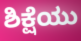
ಶಿಕ್ಷೆಯು